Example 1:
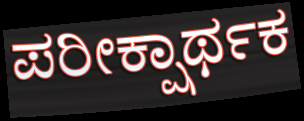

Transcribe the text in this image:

ಪರೀಕ್ಷಾರ್ಥಕ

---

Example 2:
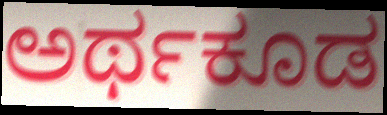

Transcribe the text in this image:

ಅರ್ಥಕೂಡ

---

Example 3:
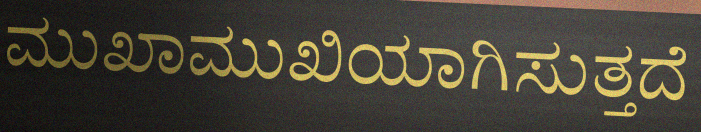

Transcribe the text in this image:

ಮುಖಾಮುಖಿಯಾಗಿಸುತ್ತದೆ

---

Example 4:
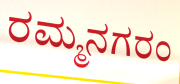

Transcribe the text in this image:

ರಮ್ಮನಗರಂ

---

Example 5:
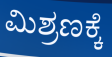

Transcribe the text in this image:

ಮಿಶ್ರಣಕ್ಕೆ